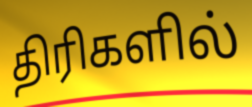
திரிகளில்